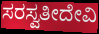
ಸರಸ್ವತೀದೇವಿ